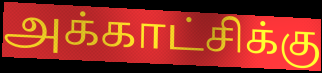
அக்காட்சிக்கு